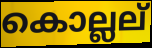
കൊല്ലല്